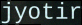
jyotir